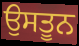
ਉਸਤੂਨ